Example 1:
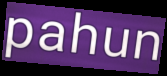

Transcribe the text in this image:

pahun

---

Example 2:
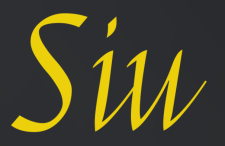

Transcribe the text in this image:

Siu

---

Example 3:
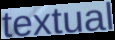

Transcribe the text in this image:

textual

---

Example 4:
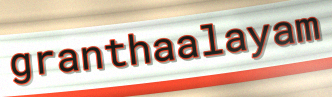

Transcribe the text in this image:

granthaalayam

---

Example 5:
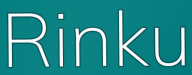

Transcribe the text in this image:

Rinku